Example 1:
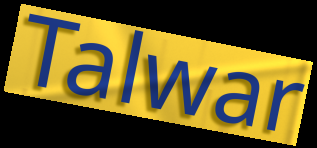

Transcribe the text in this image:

Talwar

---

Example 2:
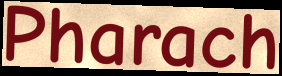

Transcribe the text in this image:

Pharach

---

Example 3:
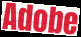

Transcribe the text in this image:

Adobe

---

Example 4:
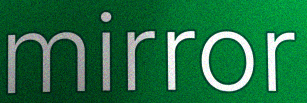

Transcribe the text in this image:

mirror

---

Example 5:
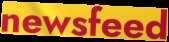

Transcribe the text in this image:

newsfeed